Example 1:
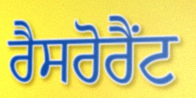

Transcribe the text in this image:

ਰੈਸਰੋਰੈਂਟ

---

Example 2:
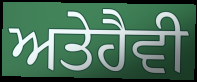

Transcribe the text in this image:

ਅਤੇਹੈਵੀ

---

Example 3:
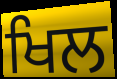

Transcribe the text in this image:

ਖਿਲ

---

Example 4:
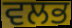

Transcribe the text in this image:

ਵਲਭ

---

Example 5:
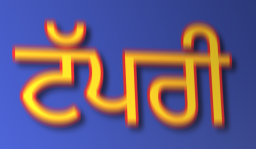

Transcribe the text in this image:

ਟੱਪਰੀ